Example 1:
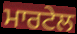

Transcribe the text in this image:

ਮਾਰਟੇਲ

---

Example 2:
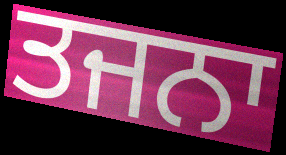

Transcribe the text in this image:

ਤਜਨਾ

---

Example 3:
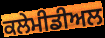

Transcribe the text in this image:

ਕਲੇਮੀਡੀਅਲ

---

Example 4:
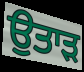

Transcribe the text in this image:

ਉਤਾਡ਼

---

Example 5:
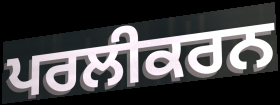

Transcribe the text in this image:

ਪਰਲੀਕਰਨ